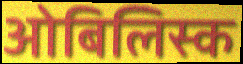
ओबिलिस्क